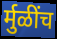
र्मुळींच